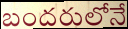
బందరులోనే